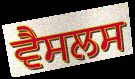
ਵੈਸਲਸ